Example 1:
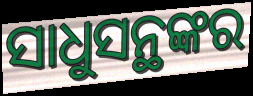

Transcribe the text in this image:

ସାଧୁସନ୍ଥଙ୍କର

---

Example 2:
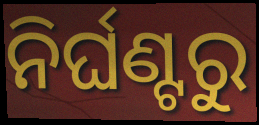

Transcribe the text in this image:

ନିର୍ଘଣ୍ଟରୁ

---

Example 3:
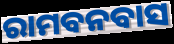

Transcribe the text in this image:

ରାମବନବାସ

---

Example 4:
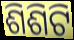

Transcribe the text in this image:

ଶିଶିଟି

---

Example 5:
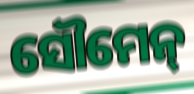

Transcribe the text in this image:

ସୌମେନ୍